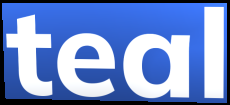
teal